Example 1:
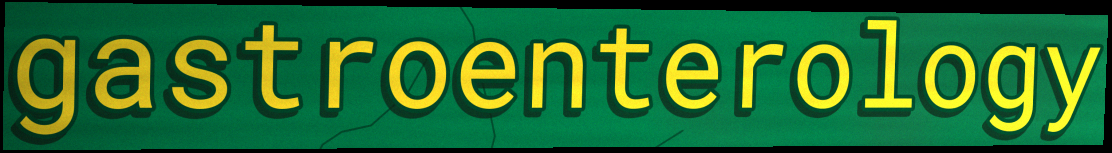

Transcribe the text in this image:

gastroenterology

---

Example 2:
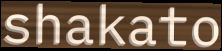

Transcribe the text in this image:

shakato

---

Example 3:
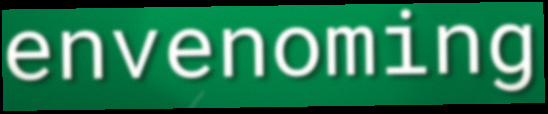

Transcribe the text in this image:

envenoming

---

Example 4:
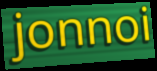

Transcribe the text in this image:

jonnoi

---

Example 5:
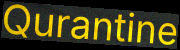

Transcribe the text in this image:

Qurantine